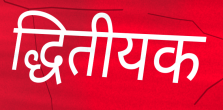
द्धितीयक